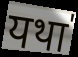
यथा॑